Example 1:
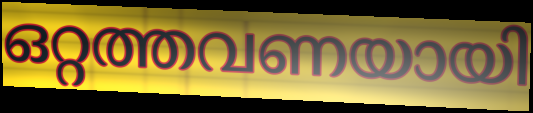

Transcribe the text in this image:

ഒറ്റത്തവണയായി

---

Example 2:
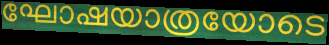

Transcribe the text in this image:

ഘോഷയാത്രയോടെ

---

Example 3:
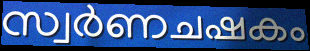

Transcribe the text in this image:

സ്വർണചഷകം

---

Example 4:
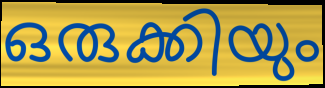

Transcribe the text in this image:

ഒരുക്കിയും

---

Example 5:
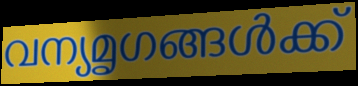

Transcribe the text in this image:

വന്യമൃഗങ്ങൾക്ക്